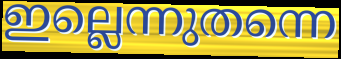
ഇല്ലെന്നുതന്നെ